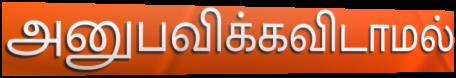
அனுபவிக்கவிடாமல்